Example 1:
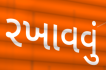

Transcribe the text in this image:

રખાવવું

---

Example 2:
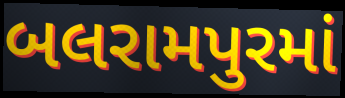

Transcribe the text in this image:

બલરામપુરમાં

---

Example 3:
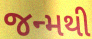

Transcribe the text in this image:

જન્મથી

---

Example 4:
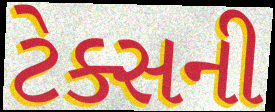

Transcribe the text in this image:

ટેક્સની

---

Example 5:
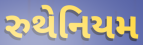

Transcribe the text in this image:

રુથેનિયમ